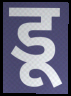
डू